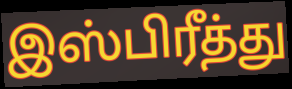
இஸ்பிரீத்து